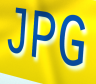
JPG